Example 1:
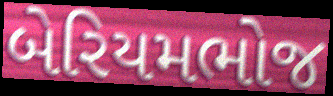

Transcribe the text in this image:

બેરિયમભોજ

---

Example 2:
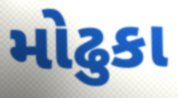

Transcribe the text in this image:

મોઢુકા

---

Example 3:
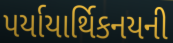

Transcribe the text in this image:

પર્યાયાર્થિકનયની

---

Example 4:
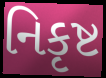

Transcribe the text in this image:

નિકૃષ્ટ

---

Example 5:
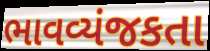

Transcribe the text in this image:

ભાવવ્યંજકતા